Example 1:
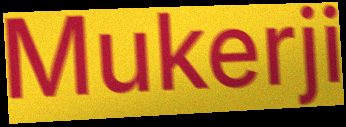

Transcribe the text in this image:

Mukerji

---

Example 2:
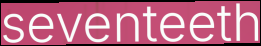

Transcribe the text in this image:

seventeeth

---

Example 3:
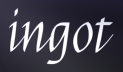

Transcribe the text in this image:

ingot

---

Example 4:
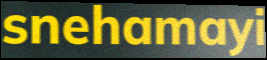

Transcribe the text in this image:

snehamayi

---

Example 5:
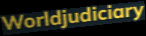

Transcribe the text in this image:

Worldjudiciary